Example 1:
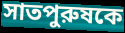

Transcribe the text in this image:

সাতপুরুষকে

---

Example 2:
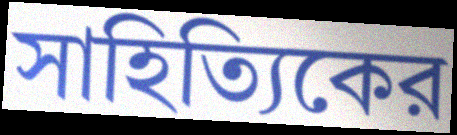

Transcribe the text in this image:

সাহিত্যিকের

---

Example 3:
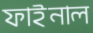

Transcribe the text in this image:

ফাইনাল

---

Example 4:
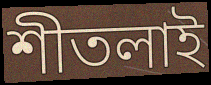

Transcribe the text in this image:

শীতলাই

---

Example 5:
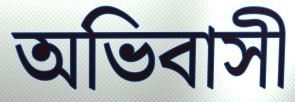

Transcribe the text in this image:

অভিবাসী